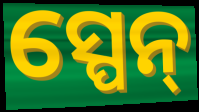
ସ୍ପେନ୍